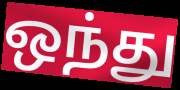
ஒந்து